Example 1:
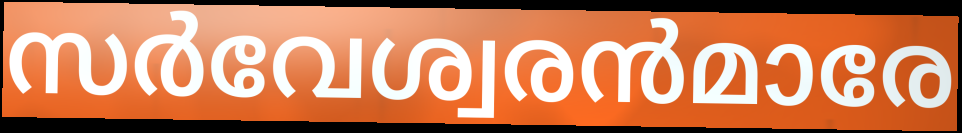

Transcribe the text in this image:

സർവേശ്വരൻമാരേ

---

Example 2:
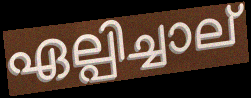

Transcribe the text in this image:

ഏല്പിച്ചാല്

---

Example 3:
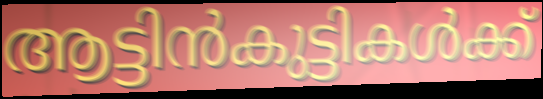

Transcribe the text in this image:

ആട്ടിൻകുട്ടികൾക്ക്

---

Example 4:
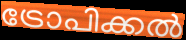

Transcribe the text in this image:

ട്രോപിക്കൽ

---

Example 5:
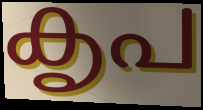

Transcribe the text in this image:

കൃപ